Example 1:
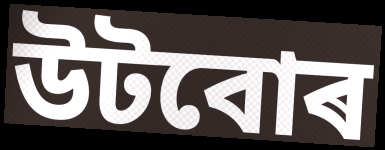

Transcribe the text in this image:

উটবোৰ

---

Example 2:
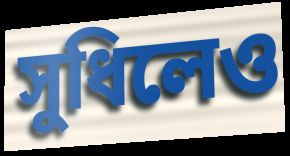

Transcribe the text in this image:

সুধিলেও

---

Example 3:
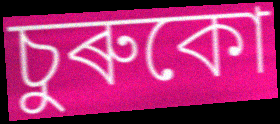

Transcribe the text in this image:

চুৰুকো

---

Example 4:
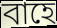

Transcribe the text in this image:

বাহে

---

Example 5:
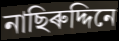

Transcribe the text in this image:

নাছিৰুদ্দিনে